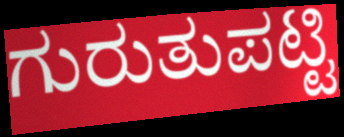
ಗುರುತುಪಟ್ಟಿ